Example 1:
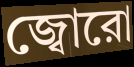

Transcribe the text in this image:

জ্বোরো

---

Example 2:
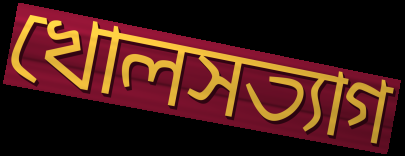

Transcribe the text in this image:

খোলসত্যাগ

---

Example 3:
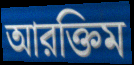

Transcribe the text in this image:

আরক্তিম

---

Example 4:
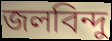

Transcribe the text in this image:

জলবিন্দু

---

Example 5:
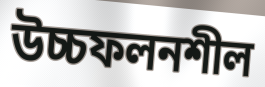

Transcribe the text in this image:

উচ্চফলনশীল